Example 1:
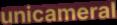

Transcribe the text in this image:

unicameral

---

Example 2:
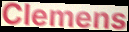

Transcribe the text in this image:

Clemens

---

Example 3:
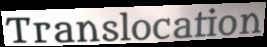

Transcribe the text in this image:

Translocation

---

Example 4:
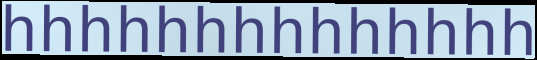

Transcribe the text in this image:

hhhhhhhhhhhhhh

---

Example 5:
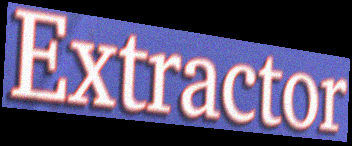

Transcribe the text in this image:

Extractor